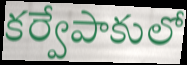
కర్వేపాకులో